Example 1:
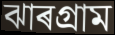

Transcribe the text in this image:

ঝাৰগ্ৰাম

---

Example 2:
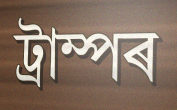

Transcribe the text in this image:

ট্ৰাম্পৰ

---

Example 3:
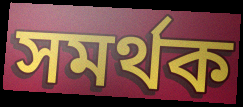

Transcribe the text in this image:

সমৰ্থক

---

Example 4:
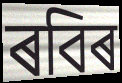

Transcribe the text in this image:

ৰবিৰ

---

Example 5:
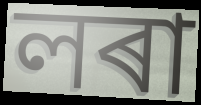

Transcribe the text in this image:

লৰা